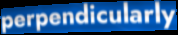
perpendicularly